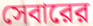
সেবারের